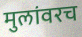
मुलांवरच